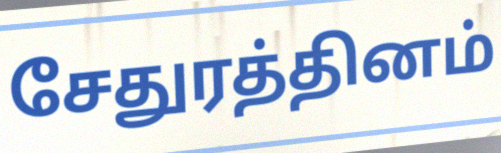
சேதுரத்தினம்